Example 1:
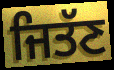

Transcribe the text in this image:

ਜਿਤੱਣ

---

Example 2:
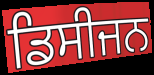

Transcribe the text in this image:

ਡਿਸੀਜਨ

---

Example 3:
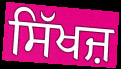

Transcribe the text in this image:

ਸਿੱਖਜ਼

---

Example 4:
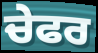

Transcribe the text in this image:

ਚੇਫਰ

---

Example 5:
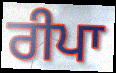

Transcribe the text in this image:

ਰੀਪਾ